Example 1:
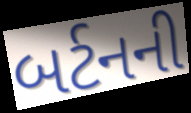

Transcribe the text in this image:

બર્ટનની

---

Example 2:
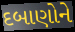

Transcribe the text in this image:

દબાણોને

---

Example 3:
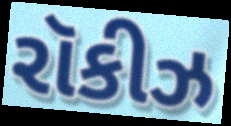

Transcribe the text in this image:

રૉકીઝ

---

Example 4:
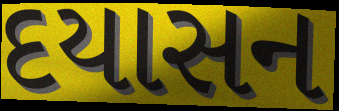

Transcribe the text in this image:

દયાસન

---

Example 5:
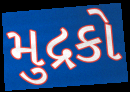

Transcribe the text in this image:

મુદ્રકો